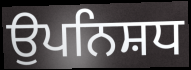
ਉਪਨਿਸ਼ਧ